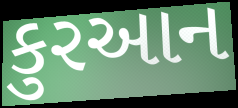
કુરઆન